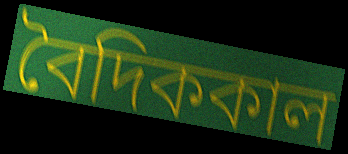
বৈদিককাল